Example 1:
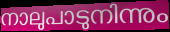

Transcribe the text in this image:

നാലുപാടുനിന്നും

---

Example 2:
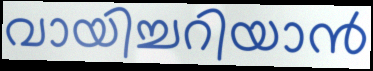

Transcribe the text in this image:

വായിച്ചറിയാൻ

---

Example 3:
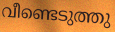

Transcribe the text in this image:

വീണ്ടെടുത്തു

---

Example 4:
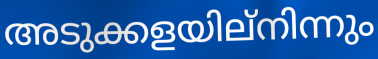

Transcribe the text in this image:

അടുക്കളയില്നിന്നും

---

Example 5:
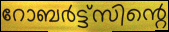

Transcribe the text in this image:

റോബർട്ട്സിന്റെ